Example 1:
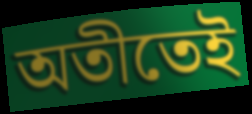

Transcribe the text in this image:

অতীতেই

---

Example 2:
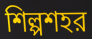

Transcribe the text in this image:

শিল্পশহর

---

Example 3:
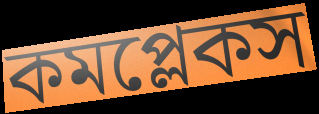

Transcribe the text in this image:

কমপ্লেকস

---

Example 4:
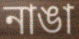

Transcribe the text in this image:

নাঙা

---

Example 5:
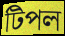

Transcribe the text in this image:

টিপল